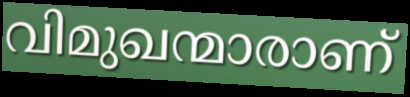
വിമുഖന്മാരാണ്